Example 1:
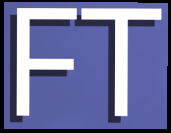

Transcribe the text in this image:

FT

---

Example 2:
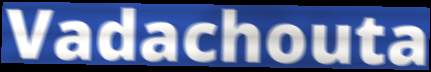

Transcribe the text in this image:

Vadachouta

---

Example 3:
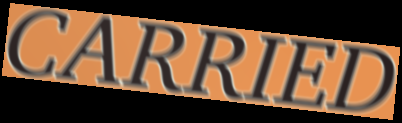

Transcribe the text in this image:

CARRIED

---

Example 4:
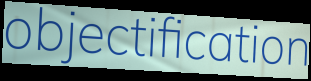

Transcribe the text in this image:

objectification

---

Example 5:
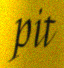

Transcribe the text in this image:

pit